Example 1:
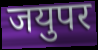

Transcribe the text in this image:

जयुपर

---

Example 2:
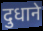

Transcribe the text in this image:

दुधाने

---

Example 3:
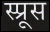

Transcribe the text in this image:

स्प्रूस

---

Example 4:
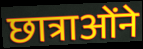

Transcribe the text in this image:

छात्राओंने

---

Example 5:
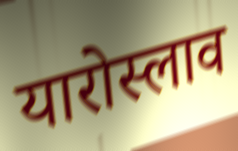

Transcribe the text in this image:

यारोस्लाव